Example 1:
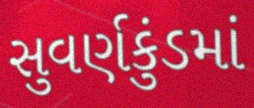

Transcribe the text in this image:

સુવર્ણકુંડમાં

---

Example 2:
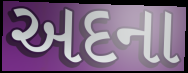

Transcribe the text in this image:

અદના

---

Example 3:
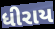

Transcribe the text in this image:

ધીરાય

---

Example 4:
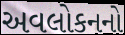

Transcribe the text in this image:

અવલોકનનો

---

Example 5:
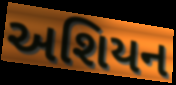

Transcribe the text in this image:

અશિયન